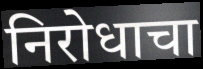
निरोधाचा